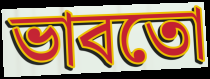
ভাবতো